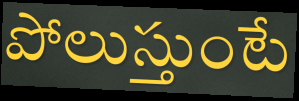
పోలుస్తుంటే